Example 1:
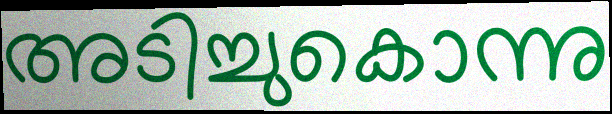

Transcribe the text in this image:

അടിച്ചുകൊന്നു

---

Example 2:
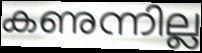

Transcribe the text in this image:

കണുന്നില്ല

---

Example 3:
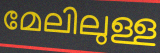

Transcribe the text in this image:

മേലിലുള്ള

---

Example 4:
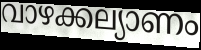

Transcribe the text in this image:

വാഴക്കല്യാണം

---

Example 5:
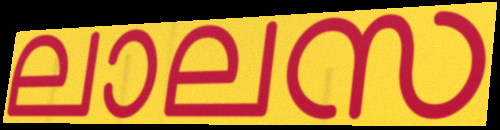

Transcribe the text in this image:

ലാലസ